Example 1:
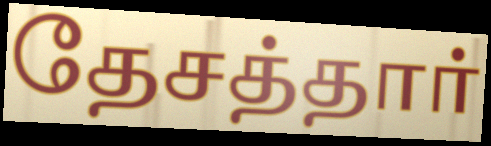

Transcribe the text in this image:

தேசத்தார்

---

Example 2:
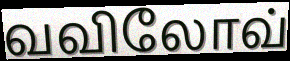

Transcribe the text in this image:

வவிலோவ்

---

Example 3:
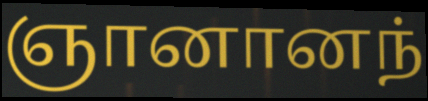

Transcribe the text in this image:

ஞானானந்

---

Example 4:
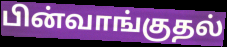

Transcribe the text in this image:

பின்வாங்குதல்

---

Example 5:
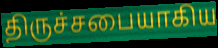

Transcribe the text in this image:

திருச்சபையாகிய